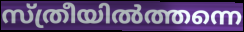
സ്ത്രീയിൽത്തന്നെ